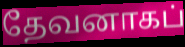
தேவனாகப்